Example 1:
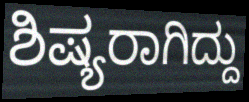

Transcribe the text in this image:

ಶಿಷ್ಯರಾಗಿದ್ದು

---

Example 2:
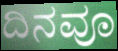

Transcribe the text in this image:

ದಿನವೂ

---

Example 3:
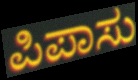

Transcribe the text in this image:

ಪಿಪಾಸು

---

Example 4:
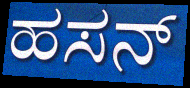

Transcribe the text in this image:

ಹಸನ್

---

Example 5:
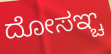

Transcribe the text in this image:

ದೋಸಞ್ಚ